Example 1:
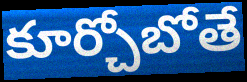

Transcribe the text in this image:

కూర్చోబోతే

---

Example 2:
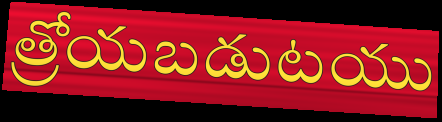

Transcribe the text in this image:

త్రోయబడుటయు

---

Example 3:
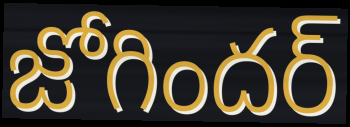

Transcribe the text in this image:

జోగిందర్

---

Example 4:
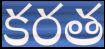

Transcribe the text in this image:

కరత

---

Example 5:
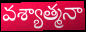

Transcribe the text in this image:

వశ్యాత్మనా